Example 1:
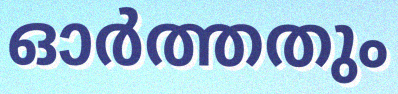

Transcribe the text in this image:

ഓർത്തതും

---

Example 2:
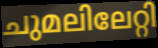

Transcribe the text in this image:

ചുമലിലേറ്റി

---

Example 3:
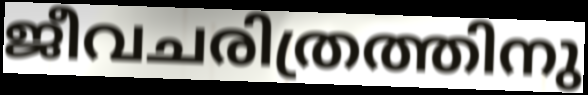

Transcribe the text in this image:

ജീവചരിത്രത്തിനു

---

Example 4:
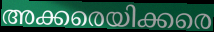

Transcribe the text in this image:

അക്കരെയിക്കരെ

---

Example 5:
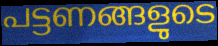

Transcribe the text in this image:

പട്ടണങ്ങളുടെ